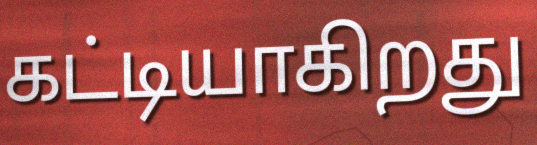
கட்டியாகிறது